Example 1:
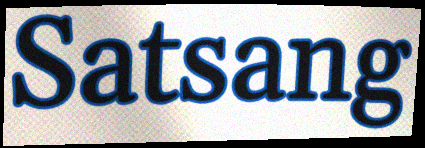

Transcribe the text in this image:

Satsang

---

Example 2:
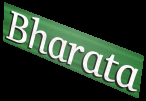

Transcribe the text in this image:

Bharata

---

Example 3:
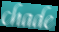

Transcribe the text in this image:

chade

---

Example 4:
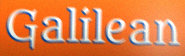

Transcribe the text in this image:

Galilean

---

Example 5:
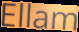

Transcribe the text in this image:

Ellam